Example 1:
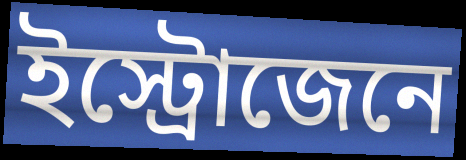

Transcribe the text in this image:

ইস্ট্রোজেনে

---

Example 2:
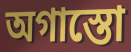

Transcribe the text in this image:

অগাস্তো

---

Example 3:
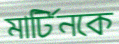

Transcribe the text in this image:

মার্টিনকে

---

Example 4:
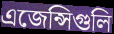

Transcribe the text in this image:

এজেন্সিগুলি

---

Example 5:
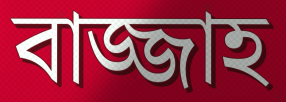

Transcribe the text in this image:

বাজ্জাহ